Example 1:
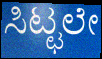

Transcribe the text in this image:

ಸಿಟ್ಟಲೇ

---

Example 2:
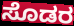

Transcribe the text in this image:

ಸೊಡರ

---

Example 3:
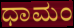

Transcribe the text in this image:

ಧಾಮಂ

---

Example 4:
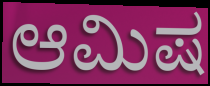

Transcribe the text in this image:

ಆಮಿಷ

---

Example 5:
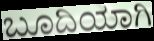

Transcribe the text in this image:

ಬೂದಿಯಾಗಿ